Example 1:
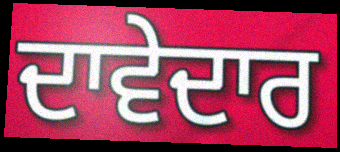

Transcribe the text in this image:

ਦਾਵੇਦਾਰ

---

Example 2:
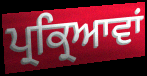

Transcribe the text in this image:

ਪ੍ਰਕ੍ਰਿਆਵਾਂ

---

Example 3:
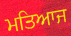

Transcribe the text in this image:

ਮਤਿਆਜ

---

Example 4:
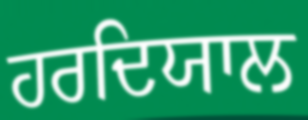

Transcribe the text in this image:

ਹਰਦਿਯਾਲ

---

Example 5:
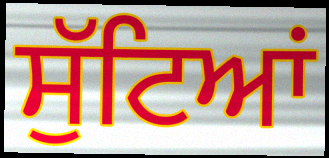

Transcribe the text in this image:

ਸੁੱਟਿਆਂ